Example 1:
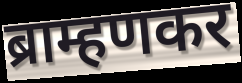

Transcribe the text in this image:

ब्राम्हणकर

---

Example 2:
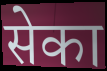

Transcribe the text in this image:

सेका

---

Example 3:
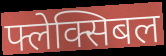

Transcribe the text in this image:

फ्लेक्सिबल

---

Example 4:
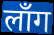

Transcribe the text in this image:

लाँग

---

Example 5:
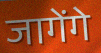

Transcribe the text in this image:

जागेंगे